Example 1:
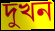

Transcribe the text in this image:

দুখন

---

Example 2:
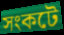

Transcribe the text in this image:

সংকটে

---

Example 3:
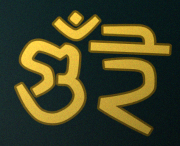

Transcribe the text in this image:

গুঁই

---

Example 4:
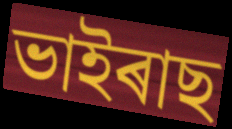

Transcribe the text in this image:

ভাইৰাছ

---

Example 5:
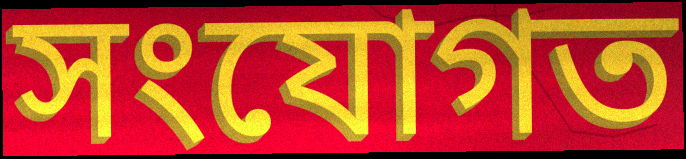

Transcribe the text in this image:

সংযোগত